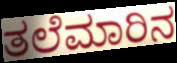
ತಲೆಮಾರಿನ